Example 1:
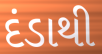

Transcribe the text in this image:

દંડાથી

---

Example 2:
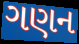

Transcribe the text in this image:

ગણન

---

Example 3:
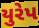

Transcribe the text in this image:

યુરેપ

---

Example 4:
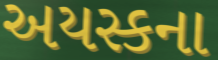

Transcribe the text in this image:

અયસ્કના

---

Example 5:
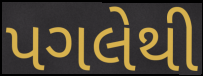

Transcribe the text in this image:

પગલેથી